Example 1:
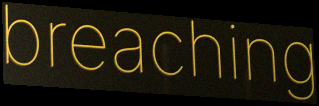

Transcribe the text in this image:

breaching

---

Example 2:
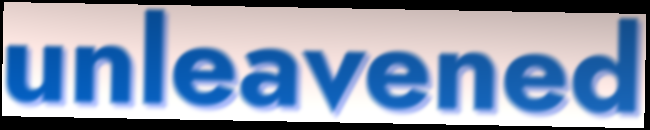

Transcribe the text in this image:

unleavened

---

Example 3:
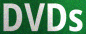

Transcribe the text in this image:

DVDs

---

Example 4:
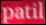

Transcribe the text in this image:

patil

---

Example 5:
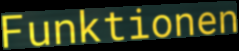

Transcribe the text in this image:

Funktionen